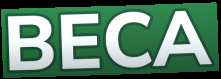
BECA